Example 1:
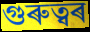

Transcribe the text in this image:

গুৰুত্বৰ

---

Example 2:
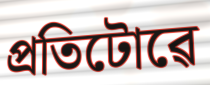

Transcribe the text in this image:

প্ৰতিটোৱে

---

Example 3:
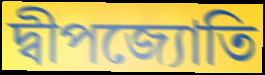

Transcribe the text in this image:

দ্বীপজ্যোতি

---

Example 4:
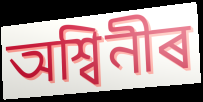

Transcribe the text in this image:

অশ্বিনীৰ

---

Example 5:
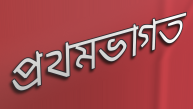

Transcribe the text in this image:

প্ৰথমভাগত